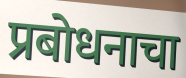
प्रबोधनाचा